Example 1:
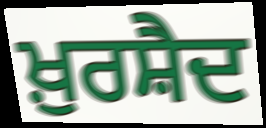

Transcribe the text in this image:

ਖ਼ੁਰਸ਼ੈਦ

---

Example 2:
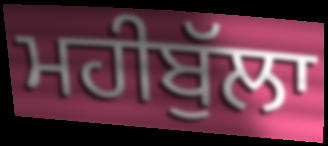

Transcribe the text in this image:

ਮਹੀਬੁੱਲਾ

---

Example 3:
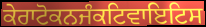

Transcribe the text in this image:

ਕੇਰਾਟੋਕਨਜੰਕਟਿਵਾਇਟਿਸ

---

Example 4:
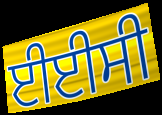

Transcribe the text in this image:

ਈਈਸੀ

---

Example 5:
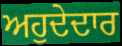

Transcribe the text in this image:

ਅਹੁਦੇਦਾਰ